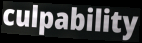
culpability